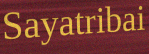
Sayatribai